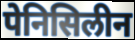
पेनिसिलीन